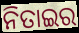
ନିତାଇର